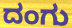
ದಂಗು